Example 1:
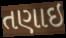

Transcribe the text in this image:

તણાઇ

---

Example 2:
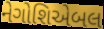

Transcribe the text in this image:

નેગોશિએબલ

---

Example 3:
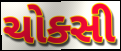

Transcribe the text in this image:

ચોક્સી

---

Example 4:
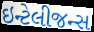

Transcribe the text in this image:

ઇન્ટેલીજન્સ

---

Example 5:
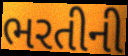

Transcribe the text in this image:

ભરતીની